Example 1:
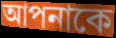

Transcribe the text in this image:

আপনাকে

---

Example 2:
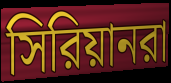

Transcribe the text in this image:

সিরিয়ানরা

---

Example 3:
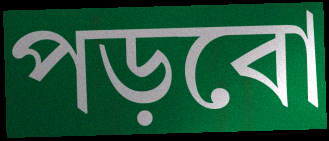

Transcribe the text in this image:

পড়বো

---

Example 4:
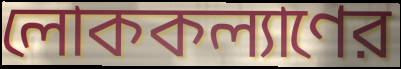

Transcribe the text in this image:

লোককল্যাণের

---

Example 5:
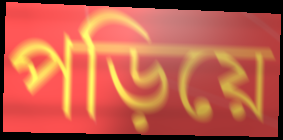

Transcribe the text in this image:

পড়িয়ে